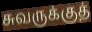
சுவருக்குத்